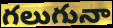
గలుగునా